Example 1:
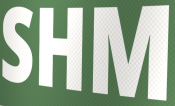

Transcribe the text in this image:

SHM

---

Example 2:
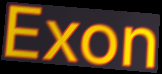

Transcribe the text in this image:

Exon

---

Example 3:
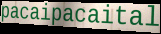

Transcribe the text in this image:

pacaipacaital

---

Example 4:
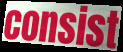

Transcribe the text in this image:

consist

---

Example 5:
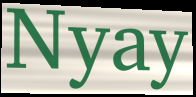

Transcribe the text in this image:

Nyay